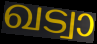
ഖട്വാ